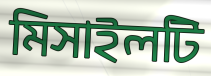
মিসাইলটি